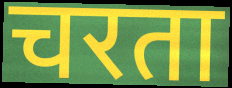
चरता